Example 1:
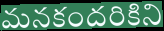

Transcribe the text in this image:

మనకందరికిని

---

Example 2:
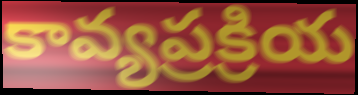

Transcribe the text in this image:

కావ్యప్రక్రియ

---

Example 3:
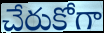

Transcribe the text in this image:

చేరుకోగా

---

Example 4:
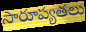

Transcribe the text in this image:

సారూప్యతలు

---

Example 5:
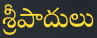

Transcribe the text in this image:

శ్రీపాదులు